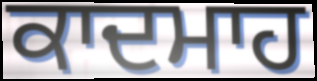
ਕਾਦਮਾਹ